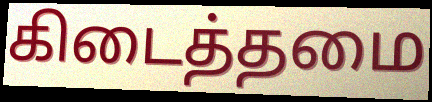
கிடைத்தமை